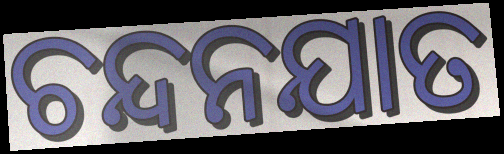
ଚନ୍ଦନଯାତ